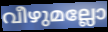
വീഴുമല്ലോ